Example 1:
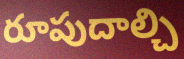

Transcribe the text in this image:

రూపుదాల్చి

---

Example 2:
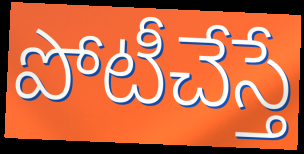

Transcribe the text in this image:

పోటీచేస్తే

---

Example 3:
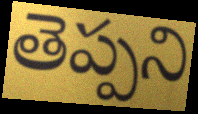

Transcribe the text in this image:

తెప్పని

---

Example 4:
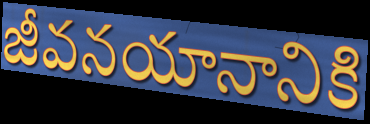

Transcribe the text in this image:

జీవనయానానికి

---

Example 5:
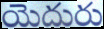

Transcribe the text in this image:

యెదురు